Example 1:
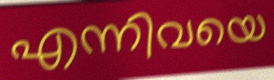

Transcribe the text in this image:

എന്നിവയെ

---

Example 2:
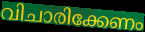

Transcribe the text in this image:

വിചാരിക്കേണം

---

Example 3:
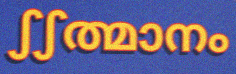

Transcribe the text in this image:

ഽഽത്മാനം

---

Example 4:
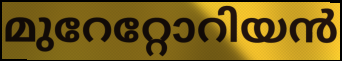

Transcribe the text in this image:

മുറേറ്റോറിയൻ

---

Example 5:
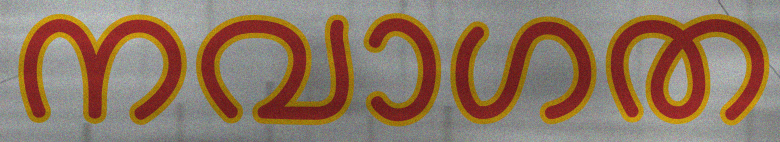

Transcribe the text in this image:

നവാഗത